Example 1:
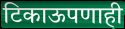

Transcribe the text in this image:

टिकाऊपणाही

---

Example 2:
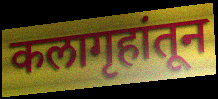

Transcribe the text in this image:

कलागृहांतून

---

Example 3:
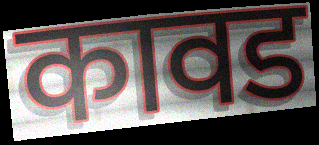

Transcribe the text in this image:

कावड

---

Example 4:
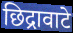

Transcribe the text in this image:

छिद्रावाटे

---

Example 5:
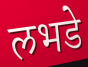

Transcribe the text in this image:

लभडे